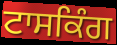
ਟਾਸਕਿੰਗ